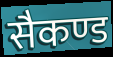
सैकण्ड